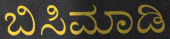
ಬಿಸಿಮಾಡಿ